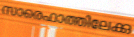
സാരെഫാത്തിലേക്കു